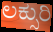
ಲಕ್ಸುರಿ